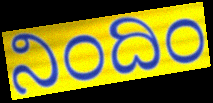
ನಿಂದಿಂ